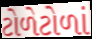
ટોળેટોળાં